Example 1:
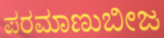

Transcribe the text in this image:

ಪರಮಾಣುಬೀಜ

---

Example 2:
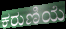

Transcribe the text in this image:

ಕರುಣಿಯೆ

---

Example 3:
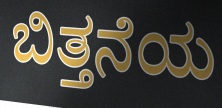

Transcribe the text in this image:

ಬಿತ್ತನೆಯ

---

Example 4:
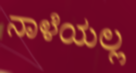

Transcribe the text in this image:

ನಾಳೆಯಲ್ಲ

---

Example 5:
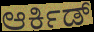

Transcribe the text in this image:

ಆರ್ಕಿಡ್